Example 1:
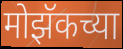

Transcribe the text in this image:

मोझॅकच्या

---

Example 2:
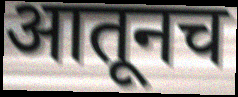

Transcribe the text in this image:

आतूनच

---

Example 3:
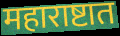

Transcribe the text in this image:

महाराष्टात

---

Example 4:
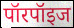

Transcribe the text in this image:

पॉरपॉइज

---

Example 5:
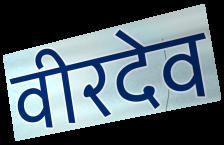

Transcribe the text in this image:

वीरदेव